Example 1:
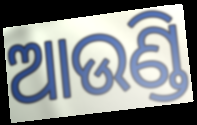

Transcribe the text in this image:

ଆଉଣ୍ଡି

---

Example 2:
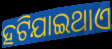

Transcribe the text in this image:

ହଟିଯାଇଥାଏ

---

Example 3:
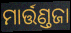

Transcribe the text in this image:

ମାର୍ତ୍ତଣ୍ଡଜା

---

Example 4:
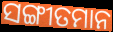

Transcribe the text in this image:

ସଙ୍ଗୀତମାନ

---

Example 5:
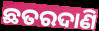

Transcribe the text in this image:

ଛତରଦାଣି